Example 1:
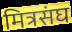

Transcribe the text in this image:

मित्रसंघ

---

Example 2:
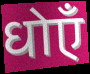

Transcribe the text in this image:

धोएँ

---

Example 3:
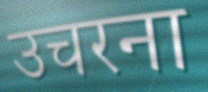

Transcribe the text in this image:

उचरना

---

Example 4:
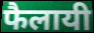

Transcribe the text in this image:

फैलायी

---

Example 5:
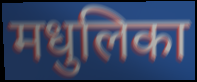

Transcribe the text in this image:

मधुलिका